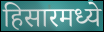
हिसारमध्ये